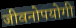
जीवनोपयोगी